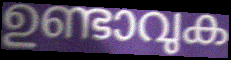
ഉണ്ടാവുക